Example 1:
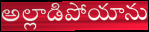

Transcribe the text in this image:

అల్లాడిపోయాను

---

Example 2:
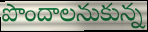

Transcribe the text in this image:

పొందాలనుకున్న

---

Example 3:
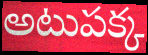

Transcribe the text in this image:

అటుపక్క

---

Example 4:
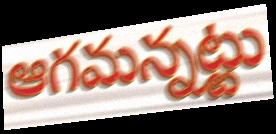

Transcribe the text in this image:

ఆగమన్నట్టు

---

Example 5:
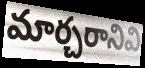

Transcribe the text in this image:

మార్చరానివి